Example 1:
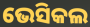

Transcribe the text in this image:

ଭେସିକଲ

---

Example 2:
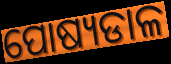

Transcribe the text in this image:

ପୋଷ୍ୟଡାଳ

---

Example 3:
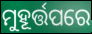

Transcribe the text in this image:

ମୁହୂର୍ତ୍ତପରେ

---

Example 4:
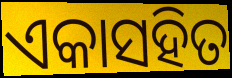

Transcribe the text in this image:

ଏକାସହିତ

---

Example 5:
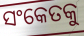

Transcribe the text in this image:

ସଂକେତକୁ